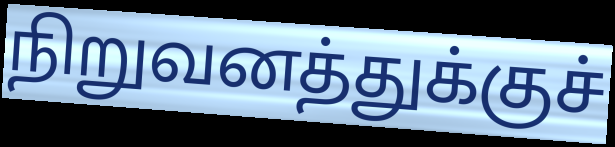
நிறுவனத்துக்குச்